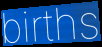
births